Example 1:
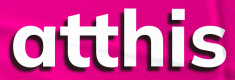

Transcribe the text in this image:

atthis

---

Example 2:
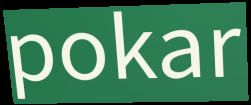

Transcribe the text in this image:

pokar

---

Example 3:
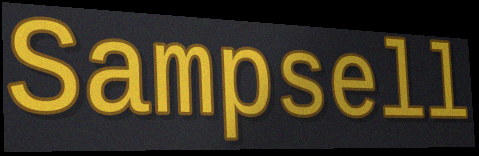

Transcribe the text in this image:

Sampsell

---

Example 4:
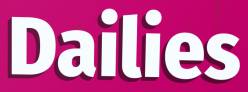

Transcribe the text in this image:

Dailies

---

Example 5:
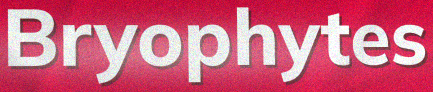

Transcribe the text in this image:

Bryophytes